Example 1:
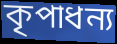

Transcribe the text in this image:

কৃপাধন্য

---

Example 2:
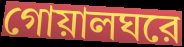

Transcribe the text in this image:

গোয়ালঘরে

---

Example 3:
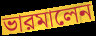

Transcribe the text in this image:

ভারমালেন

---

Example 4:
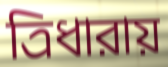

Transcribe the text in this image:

ত্রিধারায়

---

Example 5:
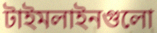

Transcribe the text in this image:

টাইমলাইনগুলো